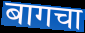
बागचा